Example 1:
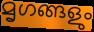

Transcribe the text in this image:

മൃഗങ്ങളും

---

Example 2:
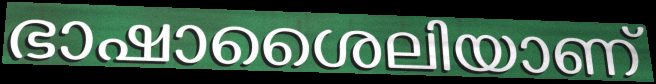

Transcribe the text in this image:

ഭാഷാശൈലിയാണ്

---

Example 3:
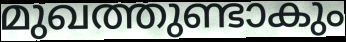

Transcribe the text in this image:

മുഖത്തുണ്ടാകും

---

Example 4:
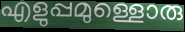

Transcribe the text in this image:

എളുപ്പമുള്ളൊരു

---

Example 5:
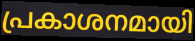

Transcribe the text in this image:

പ്രകാശനമായി